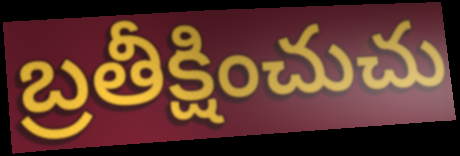
బ్రతీక్షించుచు